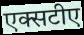
एक्सटीए